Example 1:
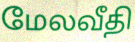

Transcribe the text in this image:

மேலவீதி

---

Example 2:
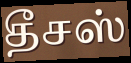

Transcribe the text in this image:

தீசஸ்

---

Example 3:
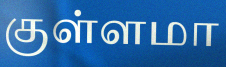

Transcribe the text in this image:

குள்ளமா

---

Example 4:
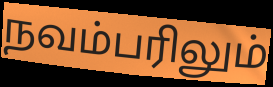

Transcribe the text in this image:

நவம்பரிலும்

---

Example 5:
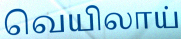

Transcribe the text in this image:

வெயிலாய்